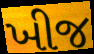
ખીજ